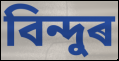
বিন্দুৰ